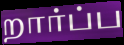
றார்ப்ப